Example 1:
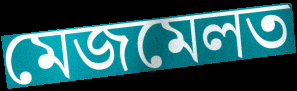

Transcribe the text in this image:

মেজমেলত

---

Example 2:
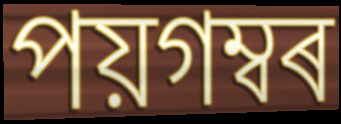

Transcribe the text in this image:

পয়গম্বৰ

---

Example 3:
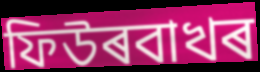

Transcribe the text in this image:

ফিউৰবাখৰ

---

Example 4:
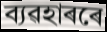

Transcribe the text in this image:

ব্যৱহাৰৰে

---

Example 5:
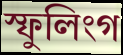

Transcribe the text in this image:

স্ফুলিংগ